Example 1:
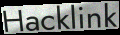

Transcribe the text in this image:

Hacklink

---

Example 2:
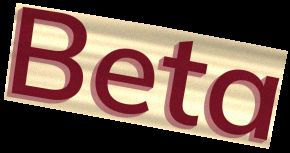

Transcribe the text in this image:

Beta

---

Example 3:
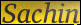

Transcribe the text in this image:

Sachin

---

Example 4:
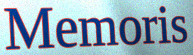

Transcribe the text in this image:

Memoris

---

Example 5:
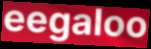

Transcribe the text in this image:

eegaloo